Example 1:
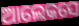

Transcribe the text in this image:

ଆଲେକସେ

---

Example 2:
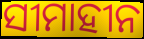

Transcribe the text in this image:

ସୀମାହୀନ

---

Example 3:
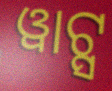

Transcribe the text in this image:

ୱାଟ୍ସ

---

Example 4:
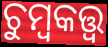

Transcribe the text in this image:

ଚୁମ୍ବକତ୍ତ୍ୱ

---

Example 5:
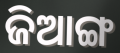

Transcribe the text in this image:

ଜିଆଙ୍ଗ